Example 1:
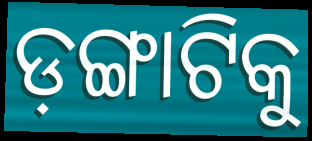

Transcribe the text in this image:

ଡ଼ଙ୍ଗାଟିକୁ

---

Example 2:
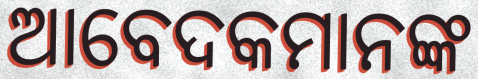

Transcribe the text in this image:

ଆବେଦକମାନଙ୍କ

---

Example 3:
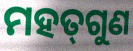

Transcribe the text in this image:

ମହତ୍‍ଗୁଣ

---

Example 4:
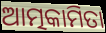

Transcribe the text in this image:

ଆତ୍ମକାମିତା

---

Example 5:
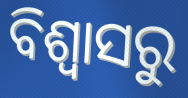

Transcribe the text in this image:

ବିଶ୍ବାସରୁ